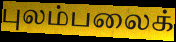
புலம்பலைக்